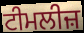
ਟੀਮਲੀਜ਼